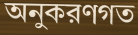
অনুকরণগত